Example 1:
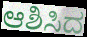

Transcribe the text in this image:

ಆಶಿಸಿದ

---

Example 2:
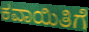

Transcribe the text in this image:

ಕವಾಯಿತಿಗೆ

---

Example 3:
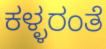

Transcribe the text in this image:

ಕಳ್ಳರಂತೆ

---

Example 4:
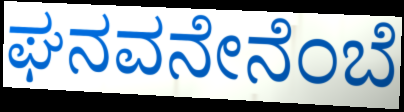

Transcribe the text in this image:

ಘನವನೇನೆಂಬೆ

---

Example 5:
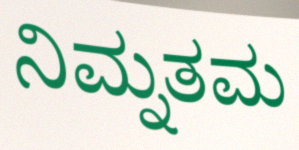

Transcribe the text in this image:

ನಿಮ್ನತಮ